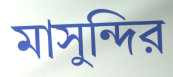
মাসুন্দির